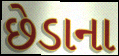
છેડાના